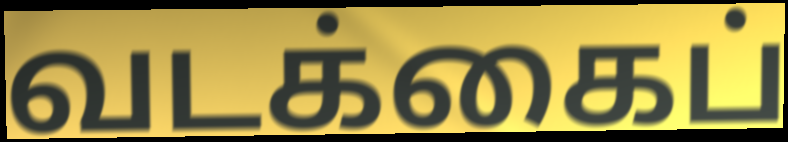
வடக்கைப்